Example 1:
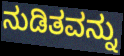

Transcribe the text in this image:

ನುಡಿತವನ್ನು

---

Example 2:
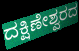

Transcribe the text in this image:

ದಕ್ಷಿಣೇಶ್ವರದ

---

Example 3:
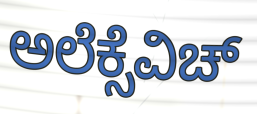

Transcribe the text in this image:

ಅಲೆಕ್ಸೆವಿಚ್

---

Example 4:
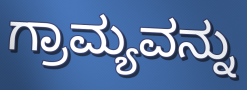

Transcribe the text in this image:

ಗ್ರಾಮ್ಯವನ್ನು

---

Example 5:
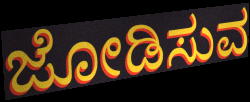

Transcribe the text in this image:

ಜೋಡಿಸುವ